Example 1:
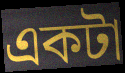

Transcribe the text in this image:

একটা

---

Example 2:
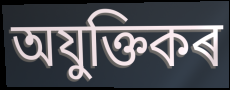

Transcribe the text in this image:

অযুক্তিকৰ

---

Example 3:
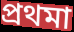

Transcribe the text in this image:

প্ৰথমা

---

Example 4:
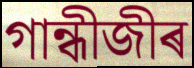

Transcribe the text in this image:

গান্ধীজীৰ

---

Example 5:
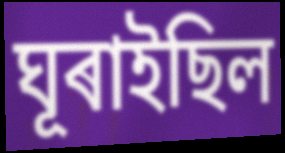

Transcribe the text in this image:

ঘূৰাইছিল